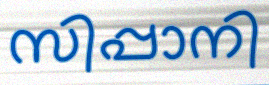
സിപ്പാനി